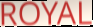
ROYAL